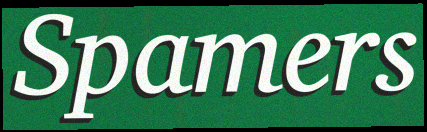
Spamers